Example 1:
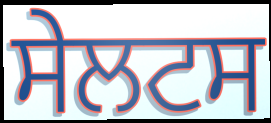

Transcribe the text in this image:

ਸੇਲਟਸ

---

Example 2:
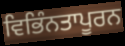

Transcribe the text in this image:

ਵਿਭਿੰਨਤਾਪੂਰਨ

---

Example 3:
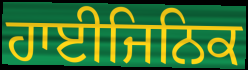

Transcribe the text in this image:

ਹਾਈਜਿਨਿਕ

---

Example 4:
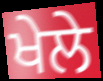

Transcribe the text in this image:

ਖੇਲੇ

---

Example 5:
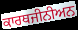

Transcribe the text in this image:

ਕਾਰਥਜੀਨੀਅਨ